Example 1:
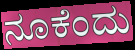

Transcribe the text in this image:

ನೂಕೆಂದು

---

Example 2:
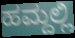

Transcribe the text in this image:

ಹಮ್ದಲ್ಲಿ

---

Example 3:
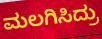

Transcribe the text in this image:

ಮಲಗಿಸಿದ್ರು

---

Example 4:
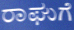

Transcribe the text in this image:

ರಾಘುಗೆ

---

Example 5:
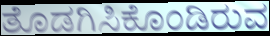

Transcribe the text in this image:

ತೊಡಗಿಸಿಕೊಂಡಿರುವ